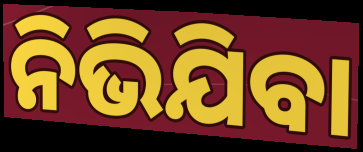
ନିଭିଯିବା